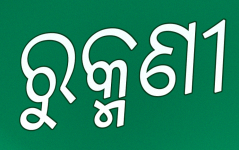
ରୁକ୍ମଣୀ